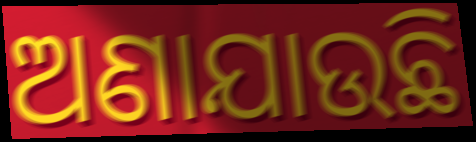
ଅଣାଯାଉଛି